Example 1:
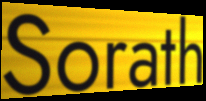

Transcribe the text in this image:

Sorath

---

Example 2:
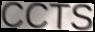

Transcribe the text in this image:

CCTS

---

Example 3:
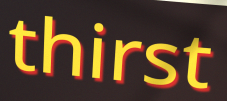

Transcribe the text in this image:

thirst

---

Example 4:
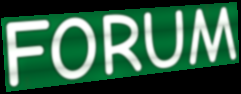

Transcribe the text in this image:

FORUM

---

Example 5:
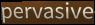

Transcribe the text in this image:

pervasive